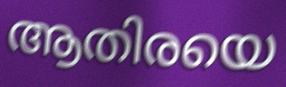
ആതിരയെ